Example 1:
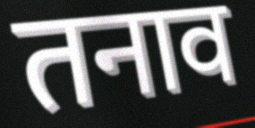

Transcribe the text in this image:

तनाव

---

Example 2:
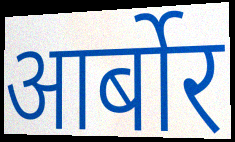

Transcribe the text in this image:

आर्बोर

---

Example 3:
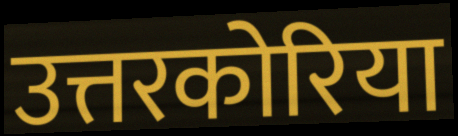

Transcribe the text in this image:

उत्तरकोरिया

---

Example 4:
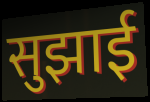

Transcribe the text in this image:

सुझाई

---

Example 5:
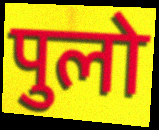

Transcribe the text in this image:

पुलो